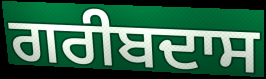
ਗਰੀਬਦਾਸ